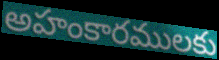
అహంకారములకు